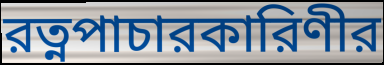
রত্নপাচারকারিণীর